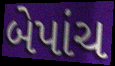
બેપાંચ